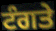
ਟੰਗਤੇ